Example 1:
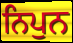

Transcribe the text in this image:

ਨਿਪੁਨ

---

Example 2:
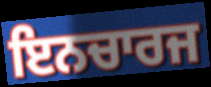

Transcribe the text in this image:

ਇਨਚਾਰਜ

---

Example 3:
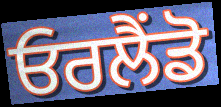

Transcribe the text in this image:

ਓਰਲੈਂਡੋ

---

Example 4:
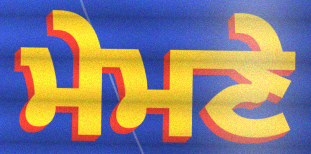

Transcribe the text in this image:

ਮੇਮਣੇ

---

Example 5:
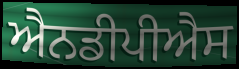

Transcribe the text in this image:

ਐਨਡੀਪੀਐਸ